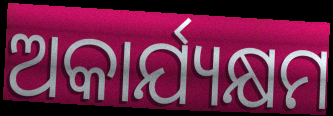
ଅକାର୍ଯ୍ୟକ୍ଷମ